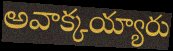
అవాక్కయ్యారు